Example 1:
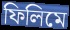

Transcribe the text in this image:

ফিলিমে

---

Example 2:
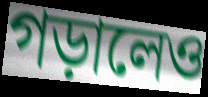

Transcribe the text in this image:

গড়ালেও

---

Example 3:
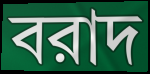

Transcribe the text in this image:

বরাদ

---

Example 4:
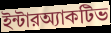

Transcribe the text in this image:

ইন্টারঅ্যাকটিভ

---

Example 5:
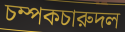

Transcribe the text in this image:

চম্পকচারুদল